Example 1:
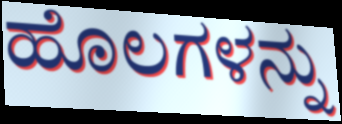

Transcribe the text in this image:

ಹೊಲಗಳನ್ನು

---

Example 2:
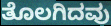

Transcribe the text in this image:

ತೊಲಗಿದವು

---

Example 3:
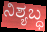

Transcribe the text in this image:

ನಿಶ್ಯಬ್ಧ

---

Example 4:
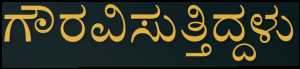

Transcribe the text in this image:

ಗೌರವಿಸುತ್ತಿದ್ದಳು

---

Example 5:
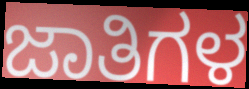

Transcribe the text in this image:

ಜಾತಿಗಳ